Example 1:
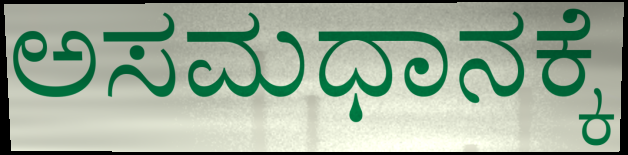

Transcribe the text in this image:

ಅಸಮಧಾನಕ್ಕೆ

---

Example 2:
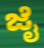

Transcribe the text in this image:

ಜೈ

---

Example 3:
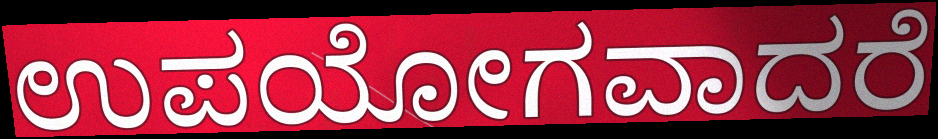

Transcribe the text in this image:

ಉಪಯೋಗವಾದರೆ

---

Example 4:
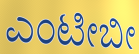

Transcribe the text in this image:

ಎಂಟೀಬೀ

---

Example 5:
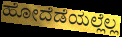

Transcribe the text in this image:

ಹೋದೆಡೆಯಲ್ಲೆಲ್ಲ